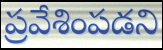
ప్రవేశింపడని